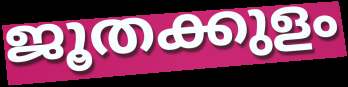
ജൂതക്കുളം